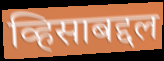
व्हिसाबद्दल